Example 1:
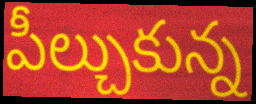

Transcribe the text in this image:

పీల్చుకున్న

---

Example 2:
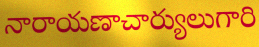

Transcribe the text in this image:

నారాయణాచార్యులుగారి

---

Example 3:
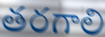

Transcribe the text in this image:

తరగాలి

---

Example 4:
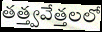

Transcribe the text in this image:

తత్త్వవేత్తలలో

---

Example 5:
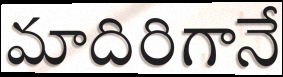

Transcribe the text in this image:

మాదిరిగానే